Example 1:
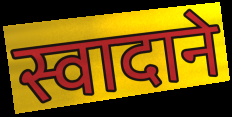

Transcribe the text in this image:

स्वादाने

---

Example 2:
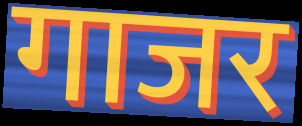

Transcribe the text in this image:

गाजर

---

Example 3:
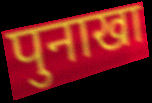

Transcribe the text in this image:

पुनाखा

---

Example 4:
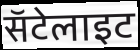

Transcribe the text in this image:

सॅटेलाइट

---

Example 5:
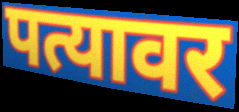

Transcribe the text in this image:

पत्यावर